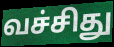
வச்சிது